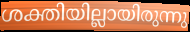
ശക്തിയില്ലായിരുന്നു